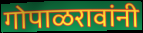
गोपाळरावांनी